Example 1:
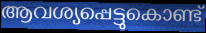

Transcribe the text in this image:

ആവശ്യപ്പെട്ടുകൊണ്ട്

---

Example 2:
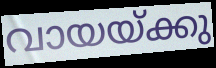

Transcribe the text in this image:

വായയ്ക്കു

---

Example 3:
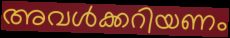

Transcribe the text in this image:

അവൾക്കറിയണം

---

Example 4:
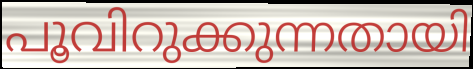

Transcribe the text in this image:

പൂവിറുക്കുന്നതായി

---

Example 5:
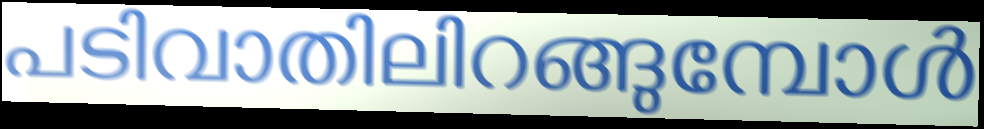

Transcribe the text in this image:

പടിവാതിലിറങ്ങുമ്പോൾ